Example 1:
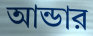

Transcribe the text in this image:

আন্ডার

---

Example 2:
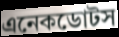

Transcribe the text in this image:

এনেকডোটস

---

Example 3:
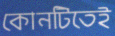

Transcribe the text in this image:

কোনটিতেই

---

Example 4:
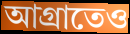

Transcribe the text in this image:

আগ্রাতেও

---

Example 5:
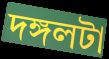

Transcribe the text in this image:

দঙ্গলটা